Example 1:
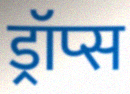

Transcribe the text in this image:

ड्रॉप्‍स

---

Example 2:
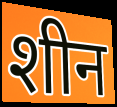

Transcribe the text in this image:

शीन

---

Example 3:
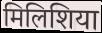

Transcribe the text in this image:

मिलिशिया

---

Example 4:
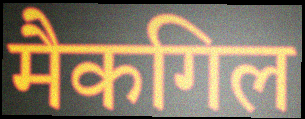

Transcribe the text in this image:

मैकगिल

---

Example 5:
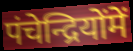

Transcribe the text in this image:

पंचेन्द्रियोंमें